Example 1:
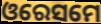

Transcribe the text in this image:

ଓରେସମେ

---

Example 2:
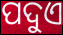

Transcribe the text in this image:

ପଦୁଏ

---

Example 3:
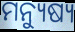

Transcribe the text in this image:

ମନ୍ୟୁଷ୍ୟ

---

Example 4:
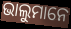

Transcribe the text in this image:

ଭାଲୁମାନେ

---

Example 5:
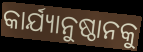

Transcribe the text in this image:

କାର୍ଯ୍ୟାନୁଷ୍ଠାନକୁ